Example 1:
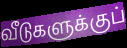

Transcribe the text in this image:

வீடுகளுக்குப்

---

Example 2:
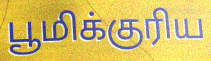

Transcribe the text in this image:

பூமிக்குரிய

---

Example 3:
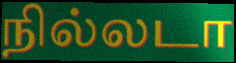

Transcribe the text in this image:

நில்லடா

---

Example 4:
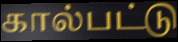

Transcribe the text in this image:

கால்பட்டு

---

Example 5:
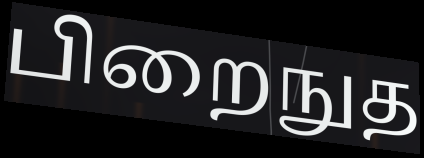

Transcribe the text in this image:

பிறைநுத